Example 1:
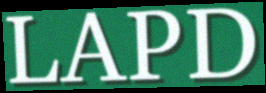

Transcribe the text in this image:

LAPD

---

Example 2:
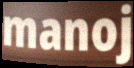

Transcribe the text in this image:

manoj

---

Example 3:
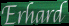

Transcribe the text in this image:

Erhard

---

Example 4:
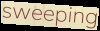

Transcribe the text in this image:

sweeping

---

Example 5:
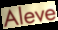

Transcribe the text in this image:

Aleve